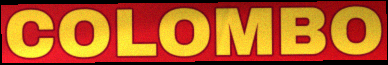
COLOMBO